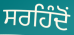
ਸਰਹਿੰਦੋਂ